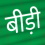
बीड़ी